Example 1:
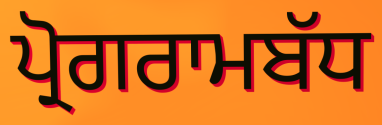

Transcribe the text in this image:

ਪ੍ਰੋਗਰਾਮਬੱਧ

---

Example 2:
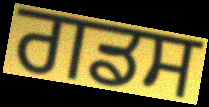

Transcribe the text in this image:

ਗਡਸ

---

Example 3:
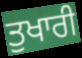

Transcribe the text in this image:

ਤੁਖਾਰੀ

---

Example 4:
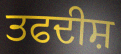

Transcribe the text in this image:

ਤਫਦੀਸ਼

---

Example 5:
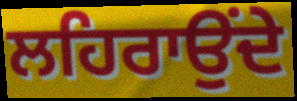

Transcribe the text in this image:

ਲਹਿਰਾਉਂਦੇ